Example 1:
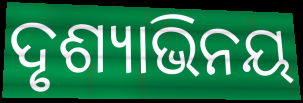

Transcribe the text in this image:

ଦୃଶ୍ୟାଭିନୟ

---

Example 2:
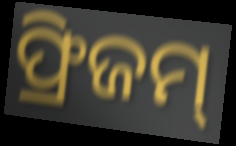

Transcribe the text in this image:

ଫ୍ରିଜମ୍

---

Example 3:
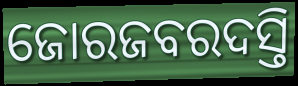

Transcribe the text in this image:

ଜୋରଜବରଦସ୍ତି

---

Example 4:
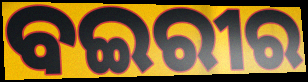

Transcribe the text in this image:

ବଇରୀର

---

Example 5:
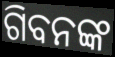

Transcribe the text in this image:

ଗିବନଙ୍କ